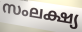
സംലക്ഷ്യ